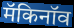
मॅकिनॉव